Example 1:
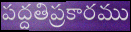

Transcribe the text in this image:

పద్దతిప్రకారము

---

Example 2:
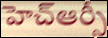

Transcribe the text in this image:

హెచ్ఆర్సీ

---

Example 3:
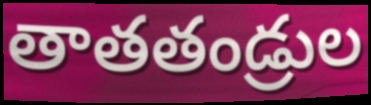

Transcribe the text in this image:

తాతతండ్రుల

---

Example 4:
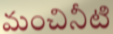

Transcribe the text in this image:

మంచినీటి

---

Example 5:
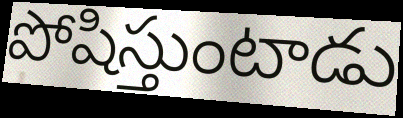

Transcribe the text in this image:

పోషిస్తుంటాడు